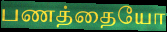
பணத்தையோ